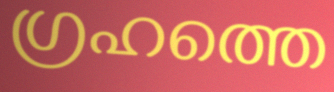
ഗ്രഹത്തെ